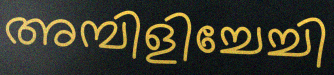
അമ്പിളിച്ചേച്ചി